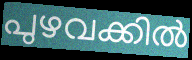
പുഴവക്കിൽ